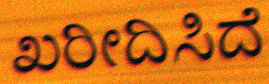
ಖರೀದಿಸಿದೆ